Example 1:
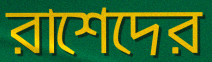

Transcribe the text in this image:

রাশেদের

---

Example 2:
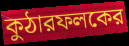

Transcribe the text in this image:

কুঠারফলকের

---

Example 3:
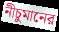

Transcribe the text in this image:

নীচুমানের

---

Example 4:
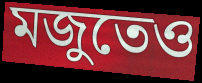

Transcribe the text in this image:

মজুতেও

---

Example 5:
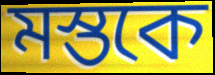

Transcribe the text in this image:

মস্তকে